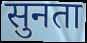
सुनता